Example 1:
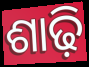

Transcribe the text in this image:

ଶାଢ଼ି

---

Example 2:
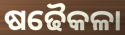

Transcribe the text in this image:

ଷଢୈକଳା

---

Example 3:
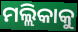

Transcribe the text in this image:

ମଲ୍ଲିକାକୁ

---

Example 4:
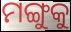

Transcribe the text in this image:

ମଙ୍ଗୁକୁ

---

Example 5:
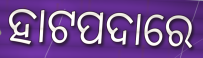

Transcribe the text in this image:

ହାଟପଦାରେ